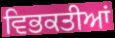
ਵਿਭਕਤੀਆਂ